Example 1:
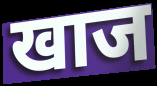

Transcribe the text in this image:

खाज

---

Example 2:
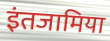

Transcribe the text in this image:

इंतजामिया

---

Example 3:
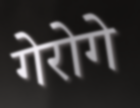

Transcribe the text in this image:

गेरोगे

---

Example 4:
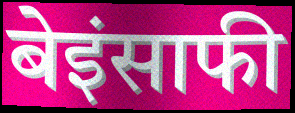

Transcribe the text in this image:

बेइंसाफी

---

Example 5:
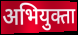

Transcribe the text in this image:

अभियुक्ता